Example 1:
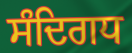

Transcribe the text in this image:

ਸੰਦਿਗਧ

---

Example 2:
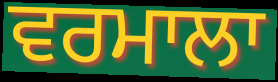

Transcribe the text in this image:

ਵਰਮਾਲਾ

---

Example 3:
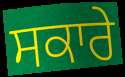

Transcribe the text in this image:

ਸਕਾਰੇ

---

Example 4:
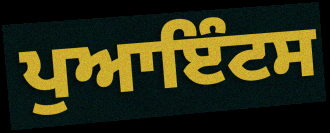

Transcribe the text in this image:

ਪੁਆਇੰਟਸ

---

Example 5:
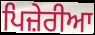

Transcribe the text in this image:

ਪਿਜ਼ੇਰੀਆ